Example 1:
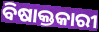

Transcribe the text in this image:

ବିଷାକ୍ତକାରୀ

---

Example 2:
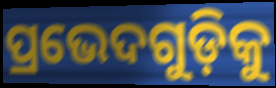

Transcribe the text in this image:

ପ୍ରଭେଦଗୁଡ଼ିକୁ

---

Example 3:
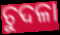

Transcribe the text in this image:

ଚୁଦଳା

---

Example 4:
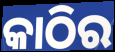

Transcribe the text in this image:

କାଠିର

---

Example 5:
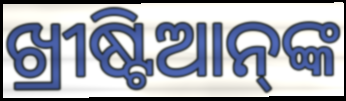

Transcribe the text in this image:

ଖ୍ରୀଷ୍ଟିଆନ୍‌ଙ୍କ